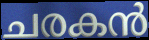
ചരകൻ